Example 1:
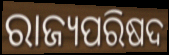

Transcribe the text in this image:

ରାଜ୍ୟପରିଷଦ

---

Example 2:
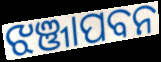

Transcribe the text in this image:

ଝଞ୍ଜାପବନ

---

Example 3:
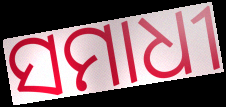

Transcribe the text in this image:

ସମାଧୀ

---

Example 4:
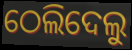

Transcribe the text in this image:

ଠେଲିଦେଲୁ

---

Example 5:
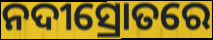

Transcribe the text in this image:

ନଦୀସ୍ରୋତରେ